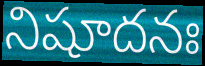
నిషూదనః